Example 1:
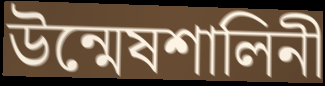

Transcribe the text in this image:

উন্মেষশালিনী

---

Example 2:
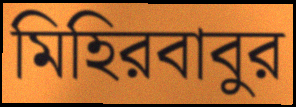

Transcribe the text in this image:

মিহিরবাবুর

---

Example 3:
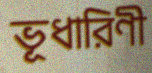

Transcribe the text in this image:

ভূধারিণী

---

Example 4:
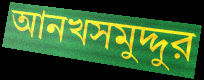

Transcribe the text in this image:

আনখসমুদ্দুর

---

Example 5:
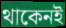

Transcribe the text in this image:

থাকেনই